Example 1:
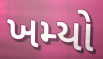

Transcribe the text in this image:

ખમ્યો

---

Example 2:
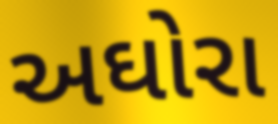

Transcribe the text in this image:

અઘોરા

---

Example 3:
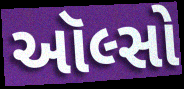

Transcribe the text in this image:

ઑલ્સો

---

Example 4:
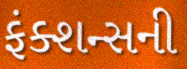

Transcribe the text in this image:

ફંક્શન્સની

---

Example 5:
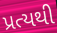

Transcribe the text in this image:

પ્રત્યથી